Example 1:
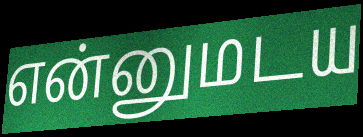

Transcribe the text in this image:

என்னுமடய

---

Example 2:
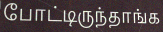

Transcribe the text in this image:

போட்டிருந்தாங்க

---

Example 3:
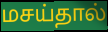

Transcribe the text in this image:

மசய்தால்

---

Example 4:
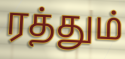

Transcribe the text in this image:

ரத்தும்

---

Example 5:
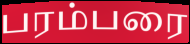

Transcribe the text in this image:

பரம்பரை